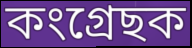
কংগ্ৰেছক